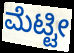
ಮೆಟ್ಟೀ